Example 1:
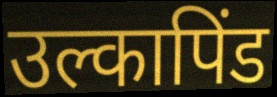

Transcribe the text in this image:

उल्कापिंड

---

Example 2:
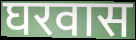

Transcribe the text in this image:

घरवास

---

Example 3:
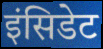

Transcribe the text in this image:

इंसिडेट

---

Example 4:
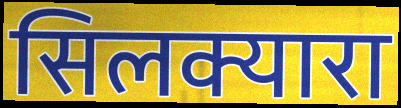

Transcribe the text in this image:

सिलक्यारा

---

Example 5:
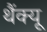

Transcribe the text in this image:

थैंक्यू